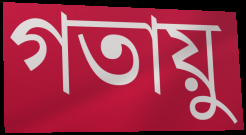
গতায়ু